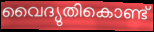
വൈദ്യുതികൊണ്ട്